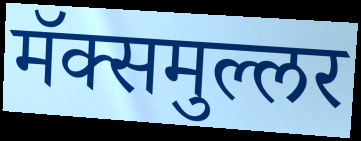
मॅक्समुल्लर